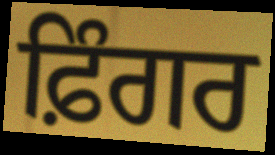
ਫ਼ਿੰਗਰ